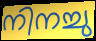
നിനച്ചു